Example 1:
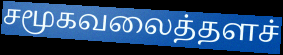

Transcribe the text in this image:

சமூகவலைத்தளச்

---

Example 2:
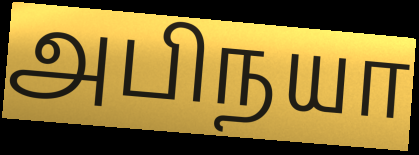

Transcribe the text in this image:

அபிநயா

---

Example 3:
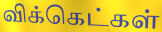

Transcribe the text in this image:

விக்கெட்கள்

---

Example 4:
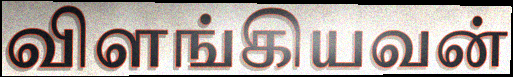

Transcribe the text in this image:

விளங்கியவன்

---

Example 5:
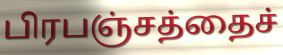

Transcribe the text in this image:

பிரபஞ்சத்தைச்